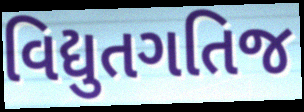
વિદ્યુતગતિજ